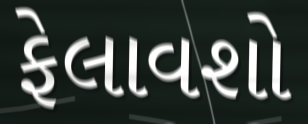
ફેલાવશો